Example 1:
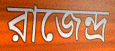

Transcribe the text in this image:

রাজেন্দ্র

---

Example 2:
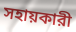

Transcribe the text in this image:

সহায়কারী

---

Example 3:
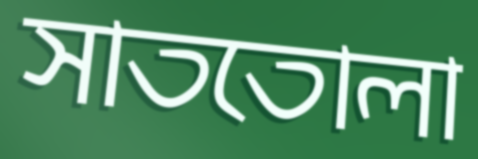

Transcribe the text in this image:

সাততোলা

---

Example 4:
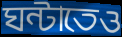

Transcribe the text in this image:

ঘন্টাতেও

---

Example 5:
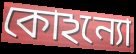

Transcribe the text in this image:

কোঽন্যো